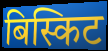
बिस्किट